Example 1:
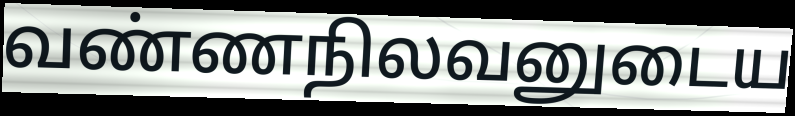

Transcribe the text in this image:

வண்ணநிலவனுடைய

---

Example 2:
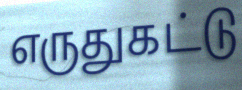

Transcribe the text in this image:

எருதுகட்டு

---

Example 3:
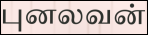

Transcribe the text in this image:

புனலவன்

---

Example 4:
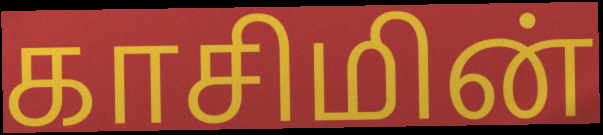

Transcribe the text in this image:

காசிமின்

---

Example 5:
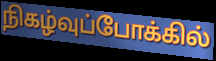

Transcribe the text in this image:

நிகழ்வுப்போக்கில்